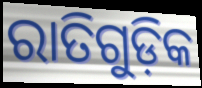
ରାତିଗୁଡ଼ିକ